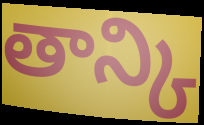
తాన్కి